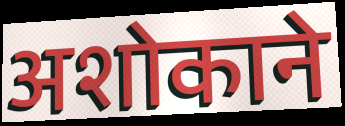
अशोकाने